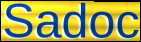
Sadoc